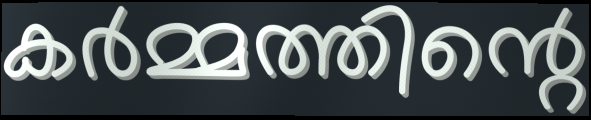
കർമ്മത്തിന്റെ